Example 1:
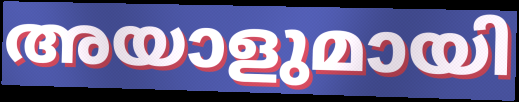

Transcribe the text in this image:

അയാളുമായി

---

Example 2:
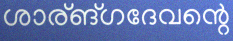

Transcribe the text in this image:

ശാര്ങ്ഗദേവന്റെ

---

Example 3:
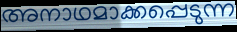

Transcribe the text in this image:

അനാഥമാക്കപ്പെടുന്ന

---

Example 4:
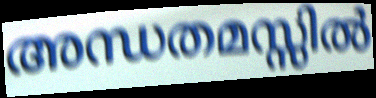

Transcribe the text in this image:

അന്ധതമസ്സിൽ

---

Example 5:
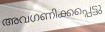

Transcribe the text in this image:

അവഗണിക്കപ്പെട്ടു